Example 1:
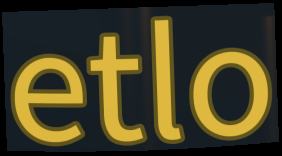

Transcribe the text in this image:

etlo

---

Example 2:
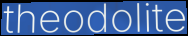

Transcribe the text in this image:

theodolite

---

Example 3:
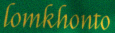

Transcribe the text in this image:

lomkhonto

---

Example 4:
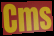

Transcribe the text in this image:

Cms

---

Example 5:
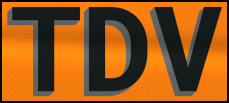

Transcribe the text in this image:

TDV